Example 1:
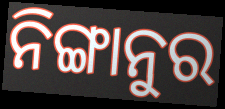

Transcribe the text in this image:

ନିଙ୍ଗାନୁର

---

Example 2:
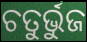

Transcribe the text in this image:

ଚତୁର୍ଭୁଜ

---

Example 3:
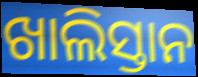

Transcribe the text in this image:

ଖାଲିସ୍ତାନ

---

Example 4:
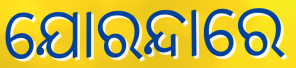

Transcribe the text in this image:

ଯୋରନ୍ଦାରେ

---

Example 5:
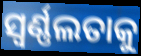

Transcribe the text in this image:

ସ୍ଵର୍ଣ୍ଣଲତାକୁ